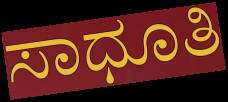
ಸಾಧೂತಿ